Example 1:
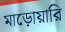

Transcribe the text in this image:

মাড়োয়ারি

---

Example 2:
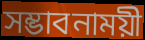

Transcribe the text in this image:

সম্ভাবনাময়ী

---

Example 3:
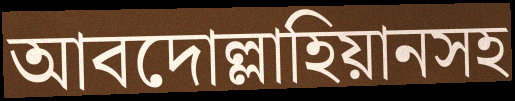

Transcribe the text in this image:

আবদোল্লাহিয়ানসহ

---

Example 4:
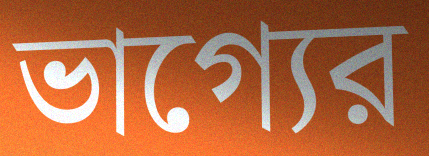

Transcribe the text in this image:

ভাগ্যের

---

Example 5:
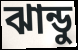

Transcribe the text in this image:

ঝান্ডু